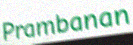
Prambanan